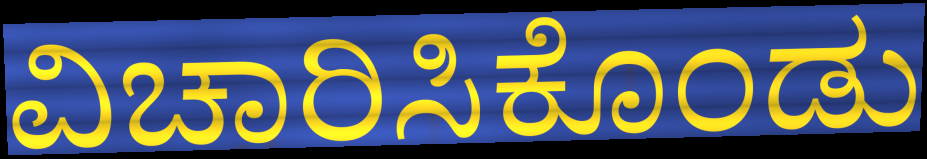
ವಿಚಾರಿಸಿಕೊಂಡು